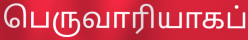
பெருவாரியாகப்